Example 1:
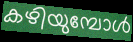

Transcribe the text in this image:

കഴിയുമ്പോൾ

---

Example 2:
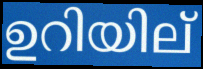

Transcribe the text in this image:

ഉറിയില്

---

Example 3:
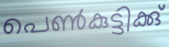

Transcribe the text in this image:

പെൺകുട്ടിക്കു്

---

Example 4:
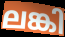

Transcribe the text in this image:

ലങ്കി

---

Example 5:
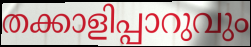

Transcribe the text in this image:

തക്കാളിപ്പാറുവും